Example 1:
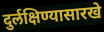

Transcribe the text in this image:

दुर्लक्षिण्यासारखे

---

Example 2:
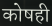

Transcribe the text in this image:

कोषही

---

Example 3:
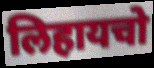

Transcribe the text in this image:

लिहायचो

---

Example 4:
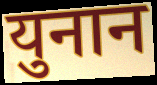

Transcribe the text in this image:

युनान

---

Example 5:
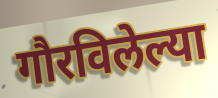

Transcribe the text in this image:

गौरविलेल्या